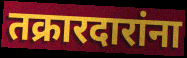
तक्रारदारांना